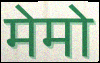
मेमो